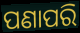
ପଣାପରି